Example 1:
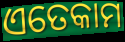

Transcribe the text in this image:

ଏତେକାମ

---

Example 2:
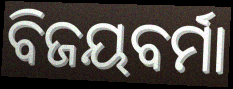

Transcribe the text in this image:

ବିଜୟବର୍ମା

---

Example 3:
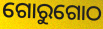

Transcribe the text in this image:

ଗୋରୁଗୋଠ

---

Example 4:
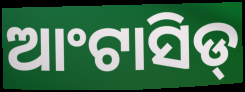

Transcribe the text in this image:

ଆଂଟାସିଡ୍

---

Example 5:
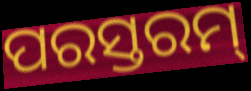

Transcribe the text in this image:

ପରସ୍ତରମ୍